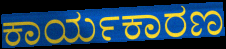
ಕಾರ್ಯಕಾರಣ